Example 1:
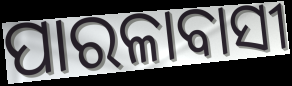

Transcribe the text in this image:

ପାରଳାବାସୀ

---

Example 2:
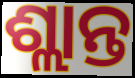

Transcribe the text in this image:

ଶ୍ଲାନ୍ତ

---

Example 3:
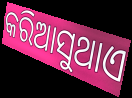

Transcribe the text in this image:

କରିଆସୁଥାଏ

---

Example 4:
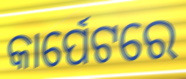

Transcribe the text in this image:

କାର୍ପେଟରେ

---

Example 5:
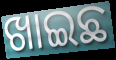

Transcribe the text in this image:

ଖାଇଛ